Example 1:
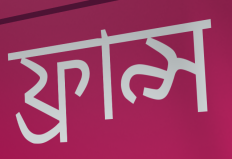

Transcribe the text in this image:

ফ্রান্স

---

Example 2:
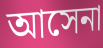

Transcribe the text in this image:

আসেনা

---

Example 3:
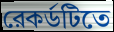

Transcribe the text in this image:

রেকর্ডটিতে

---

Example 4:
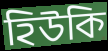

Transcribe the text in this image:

হিউকি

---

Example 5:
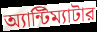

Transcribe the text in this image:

অ্যান্টিম্যাটার